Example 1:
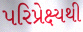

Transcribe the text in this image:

પરિપ્રેક્ષ્યથી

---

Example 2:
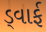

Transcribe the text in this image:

ડ્વાર્ફ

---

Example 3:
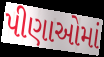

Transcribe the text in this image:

પીણાઓમાં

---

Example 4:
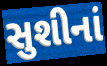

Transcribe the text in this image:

સુશીનાં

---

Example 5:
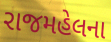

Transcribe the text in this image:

રાજમહેલના